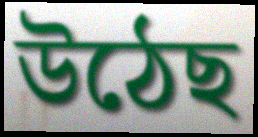
উঠেছ